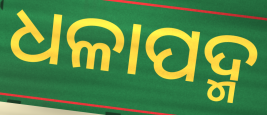
ଧଳାପଦ୍ମ